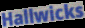
Hallwicks